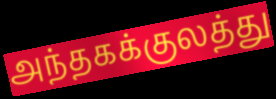
அந்தகக்குலத்து